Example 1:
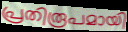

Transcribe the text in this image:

പ്രതിരൂപമായി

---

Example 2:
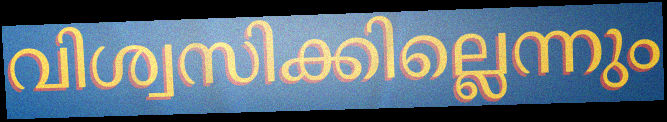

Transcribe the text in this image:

വിശ്വസിക്കില്ലെന്നും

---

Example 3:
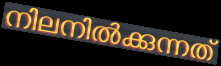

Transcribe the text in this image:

നിലനിൽക്കുന്നത്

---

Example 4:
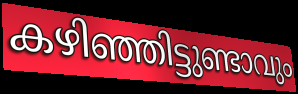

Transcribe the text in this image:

കഴിഞ്ഞിട്ടുണ്ടാവും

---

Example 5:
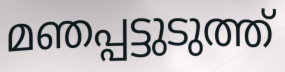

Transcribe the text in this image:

മഞപ്പട്ടുടുത്ത്